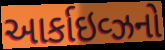
આર્કાઇવ્ઝનો